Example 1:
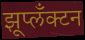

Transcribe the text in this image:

झूप्लँक्टन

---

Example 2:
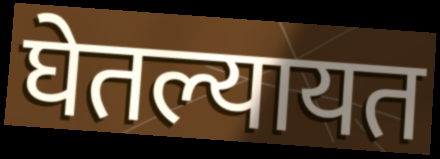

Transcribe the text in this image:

घेतल्यायत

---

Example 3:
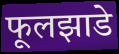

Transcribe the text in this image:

फूलझाडे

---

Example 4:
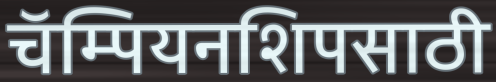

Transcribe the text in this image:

चॅम्पियनशिपसाठी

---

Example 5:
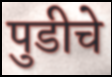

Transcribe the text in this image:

पुडीचे